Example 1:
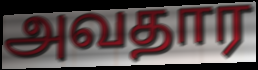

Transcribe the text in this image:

அவதார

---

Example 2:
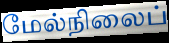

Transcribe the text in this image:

மேல்நிலைப்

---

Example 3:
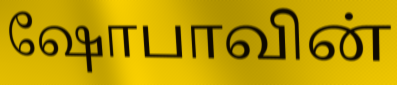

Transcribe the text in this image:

ஷோபாவின்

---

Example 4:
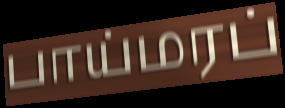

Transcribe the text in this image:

பாய்மரப்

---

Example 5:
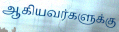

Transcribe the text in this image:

ஆகியவர்களுக்கு